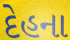
દેહના